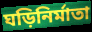
ঘড়িনির্মাতা